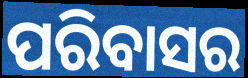
ପରିବାସର